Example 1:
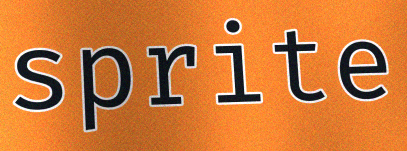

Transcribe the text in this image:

sprite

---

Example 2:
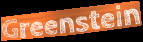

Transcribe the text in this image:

Greenstein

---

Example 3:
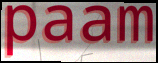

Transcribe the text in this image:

paam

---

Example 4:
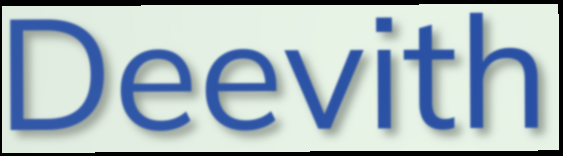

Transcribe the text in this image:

Deevith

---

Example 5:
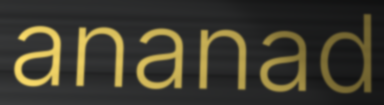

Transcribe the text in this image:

ananad